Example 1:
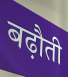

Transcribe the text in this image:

बढ़ौती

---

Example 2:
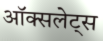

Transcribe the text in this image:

ऑक्सलेट्स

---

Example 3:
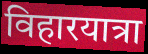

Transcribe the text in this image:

विहारयात्रा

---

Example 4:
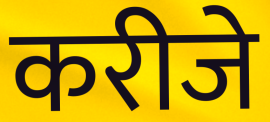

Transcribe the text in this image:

करीजे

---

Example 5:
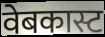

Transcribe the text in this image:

वेबकास्ट